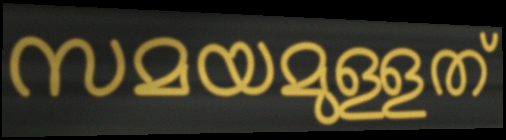
സമയമുള്ളത്